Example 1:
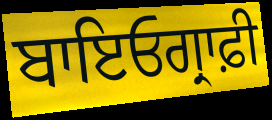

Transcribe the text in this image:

ਬਾਇਓਗ੍ਰਾਫ਼ੀ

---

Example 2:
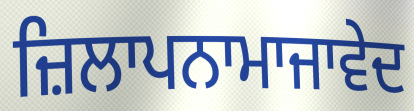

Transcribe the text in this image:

ਜ਼ਿਲਾਪਨਾਮਾਜਾਵੇਦ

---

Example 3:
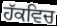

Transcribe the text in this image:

ਹੱਕਵਿਚ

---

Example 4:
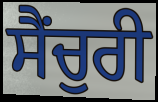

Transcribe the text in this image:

ਸੈਂਚੁਰੀ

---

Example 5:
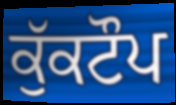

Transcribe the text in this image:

ਕੁੱਕਟੌਪ